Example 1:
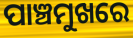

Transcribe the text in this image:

ପାଞ୍ଚମୁଖରେ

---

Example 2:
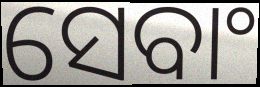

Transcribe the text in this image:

ସେବାଂ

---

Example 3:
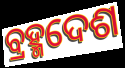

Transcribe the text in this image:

ବ୍ରହ୍ମଦେଶ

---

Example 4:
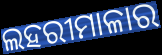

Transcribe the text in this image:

ଲହରୀମାଳାର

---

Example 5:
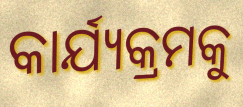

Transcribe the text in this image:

କାର୍ଯ୍ୟକ୍ରମକୁ